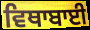
ਵਿਥਾਬਾਈ